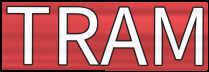
TRAM